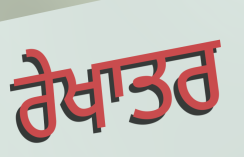
ਰੇਖਾਤਰ